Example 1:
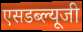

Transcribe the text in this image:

एसडब्ल्यूजी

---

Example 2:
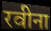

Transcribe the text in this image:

रवीना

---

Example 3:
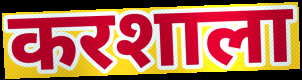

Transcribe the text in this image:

करशाला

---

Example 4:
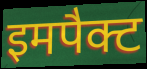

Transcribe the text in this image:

इमपैक्ट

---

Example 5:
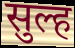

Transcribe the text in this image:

सुल्ह